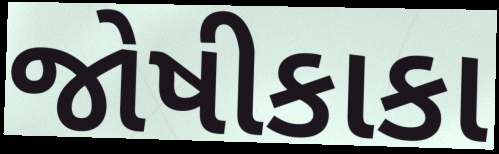
જોષીકાકા